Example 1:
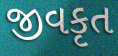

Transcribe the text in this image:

જીવકૃત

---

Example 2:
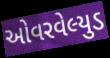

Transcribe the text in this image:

ઓવરવેલ્યુડ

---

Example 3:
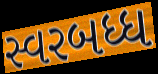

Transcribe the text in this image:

સ્વરબધ્ધ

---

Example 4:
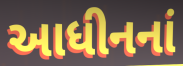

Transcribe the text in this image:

આધીનનાં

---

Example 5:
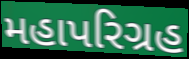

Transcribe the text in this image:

મહાપરિગ્રહ